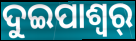
ଦୁଇପାଶ୍ୱର୍